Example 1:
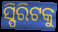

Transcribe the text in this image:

ସ୍ପିରିଟକୁ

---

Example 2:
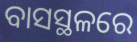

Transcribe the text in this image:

ବାସସ୍ଥଳରେ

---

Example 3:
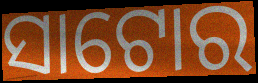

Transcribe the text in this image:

ସାଟୋର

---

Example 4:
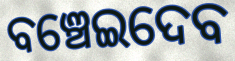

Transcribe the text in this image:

ବଞ୍ଚେଇଦେବ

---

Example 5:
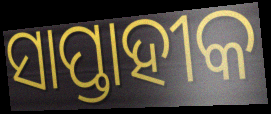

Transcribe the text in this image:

ସାପ୍ତାହୀକ